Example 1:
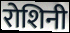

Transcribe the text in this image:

रोशिनी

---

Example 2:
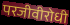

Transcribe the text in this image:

परजीवीरोधी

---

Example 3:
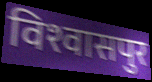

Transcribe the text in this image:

विश्वासपुर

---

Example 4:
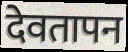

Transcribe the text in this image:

देवतापन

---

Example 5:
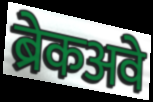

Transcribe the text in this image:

ब्रेकअवे